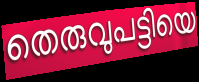
തെരുവുപട്ടിയെ